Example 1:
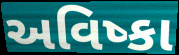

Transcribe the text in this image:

અવિષ્કા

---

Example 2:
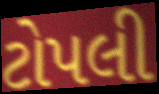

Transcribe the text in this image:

ટોપલી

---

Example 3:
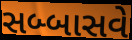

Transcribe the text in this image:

સબ્બાસવે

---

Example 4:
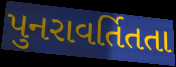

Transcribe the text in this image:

પુનરાવર્તિતતા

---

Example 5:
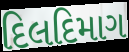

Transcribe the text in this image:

દિલદિમાગ